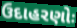
ઉદાહરણોઃ